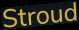
Stroud